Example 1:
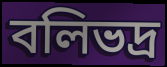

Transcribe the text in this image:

বলিভদ্র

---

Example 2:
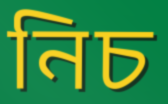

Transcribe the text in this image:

নিচ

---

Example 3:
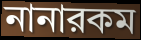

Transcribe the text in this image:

নানারকম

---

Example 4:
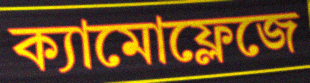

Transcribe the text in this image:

ক্যামোফ্লেজে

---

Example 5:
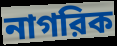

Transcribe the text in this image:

নাগরিক